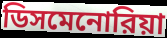
ডিসমেনোরিয়া